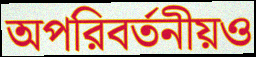
অপরিবর্তনীয়ও